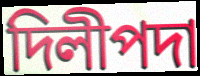
দিলীপদা